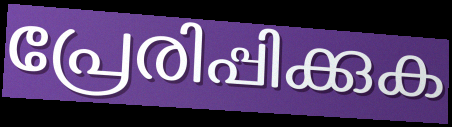
പ്രേരിപ്പിക്കുക